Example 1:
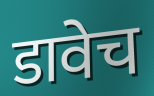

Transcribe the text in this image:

डावेच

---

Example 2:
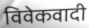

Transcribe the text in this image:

विवेकवादी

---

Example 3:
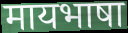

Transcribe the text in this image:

मायभाषा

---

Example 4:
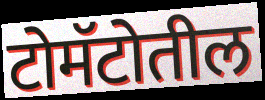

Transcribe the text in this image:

टोमॅटोतील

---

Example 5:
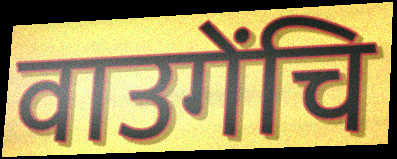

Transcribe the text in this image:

वाउगेंचि